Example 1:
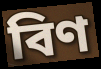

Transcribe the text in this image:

বিণ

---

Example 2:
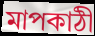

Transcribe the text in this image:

মাপকাঠী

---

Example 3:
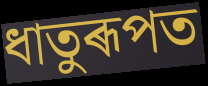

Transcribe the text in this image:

ধাতুৰূপত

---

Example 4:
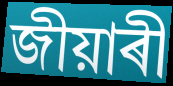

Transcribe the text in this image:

জীয়াৰী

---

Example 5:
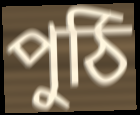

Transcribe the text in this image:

পুঠি